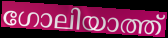
ഗോലിയാത്ത്